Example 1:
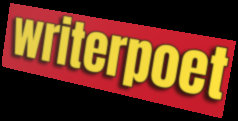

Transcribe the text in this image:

writerpoet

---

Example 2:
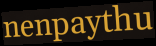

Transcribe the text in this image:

nenpaythu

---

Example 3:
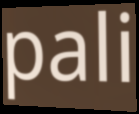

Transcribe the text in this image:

pali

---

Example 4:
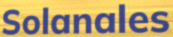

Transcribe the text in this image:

Solanales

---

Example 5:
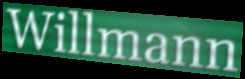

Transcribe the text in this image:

Willmann